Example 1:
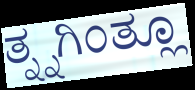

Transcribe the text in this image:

ತ್ನ್ನಗಿಂತ್ಲೂ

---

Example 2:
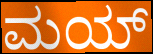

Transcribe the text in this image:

ಮಯ್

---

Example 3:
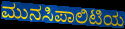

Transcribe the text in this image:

ಮುನಸಿಪಾಲಿಟಿಯ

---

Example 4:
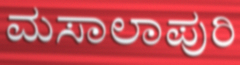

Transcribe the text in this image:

ಮಸಾಲಾಪುರಿ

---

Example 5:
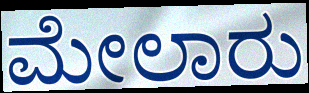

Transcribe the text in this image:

ಮೇಲಾರು